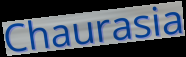
Chaurasia